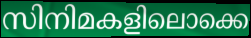
സിനിമകളിലൊക്കെ